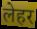
लेहर